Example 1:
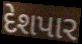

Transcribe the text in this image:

દેશપાર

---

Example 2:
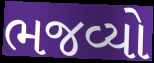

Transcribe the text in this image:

ભજવ્યો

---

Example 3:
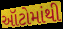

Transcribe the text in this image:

ઑટોમાંથી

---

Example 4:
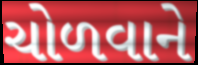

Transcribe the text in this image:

ચોળવાને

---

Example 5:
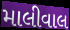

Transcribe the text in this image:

માલીવાલ